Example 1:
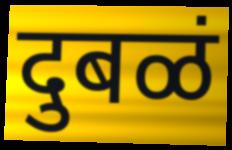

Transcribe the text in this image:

दुबळं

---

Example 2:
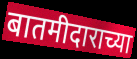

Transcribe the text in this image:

बातमीदाराच्या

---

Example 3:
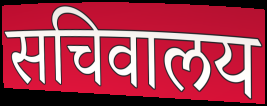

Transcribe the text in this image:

सचिवालय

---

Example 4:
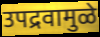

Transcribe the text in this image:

उपद्रवामुळे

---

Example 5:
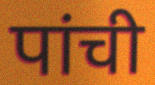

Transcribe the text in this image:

पांची